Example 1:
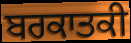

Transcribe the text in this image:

ਬਰਕਾਤਕੀ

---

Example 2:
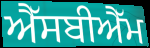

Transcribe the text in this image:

ਐੱਸਬੀਐੱਮ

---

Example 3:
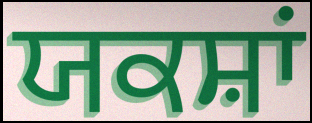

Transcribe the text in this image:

ਯਕਸ਼ਾਂ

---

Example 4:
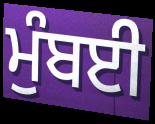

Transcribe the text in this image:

ਮੁੰਬਈ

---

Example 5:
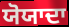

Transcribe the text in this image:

ਯੋਯਾਦਾ